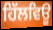
ਹਿੱਲਵਿਊ